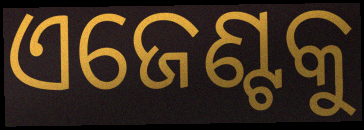
ଏଜେଣ୍ଟକୁ